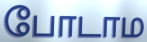
போடாம